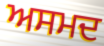
ਅਸਮਦ